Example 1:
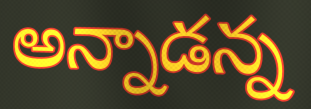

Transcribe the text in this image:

అన్నాడన్న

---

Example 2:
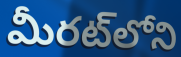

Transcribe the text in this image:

మీరట్‌లోని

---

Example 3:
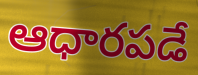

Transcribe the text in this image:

ఆధారపడే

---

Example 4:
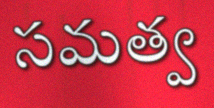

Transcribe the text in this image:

సమత్వ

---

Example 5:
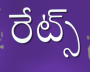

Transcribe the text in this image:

రేట్స్